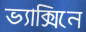
ভ্যাক্সিনে